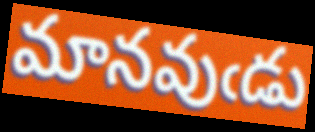
మానవుఁడు